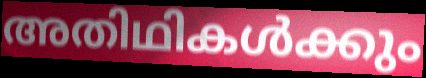
അതിഥികൾക്കും